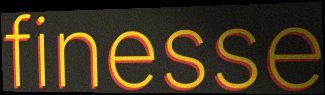
finesse